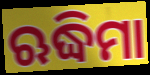
ଋଦ୍ଧିମା